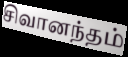
சிவானந்தம்